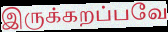
இருக்கறப்பவே